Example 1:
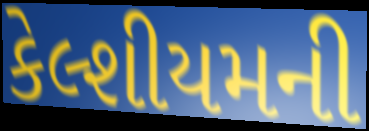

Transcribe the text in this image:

કેલ્શીયમની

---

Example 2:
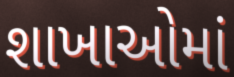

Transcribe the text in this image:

શાખાઓમાં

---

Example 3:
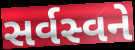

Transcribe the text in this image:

સર્વસ્વને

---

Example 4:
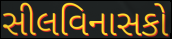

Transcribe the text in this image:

સીલવિનાસકો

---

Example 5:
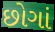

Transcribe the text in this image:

છોગાં